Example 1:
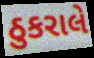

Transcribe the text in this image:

ઠુકરાલે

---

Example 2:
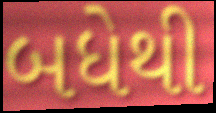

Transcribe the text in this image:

બધેથી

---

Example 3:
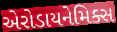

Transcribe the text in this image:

એરોડાયનેમિક્સ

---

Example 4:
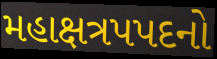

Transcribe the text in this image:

મહાક્ષત્રપપદનો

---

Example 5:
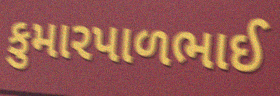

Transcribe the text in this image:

કુમારપાળભાઈ